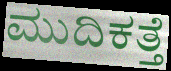
ಮುದಿಕತ್ತೆ